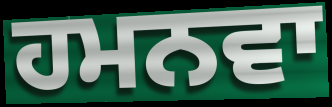
ਹਮਨਵਾ